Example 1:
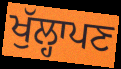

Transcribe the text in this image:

ਖੁੱਲ੍ਹਾਪਣ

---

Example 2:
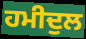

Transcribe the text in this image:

ਹਮੀਦੁਲ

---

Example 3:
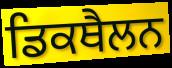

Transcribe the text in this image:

ਡਿਕਥੈਲਨ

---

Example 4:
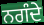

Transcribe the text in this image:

ਨਗੰਦੇ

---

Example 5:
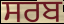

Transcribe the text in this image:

ਸਰਬ